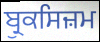
ਬ੍ਰੁਕਸਿਜ਼ਮ